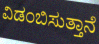
ವಿಡಂಬಿಸುತ್ತಾನೆ